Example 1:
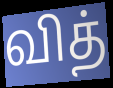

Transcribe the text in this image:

வித்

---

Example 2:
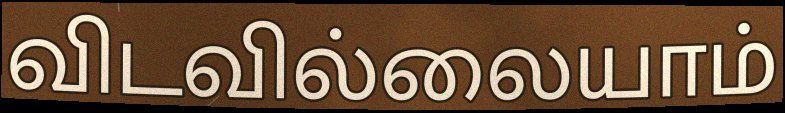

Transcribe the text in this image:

விடவில்லையாம்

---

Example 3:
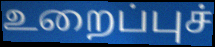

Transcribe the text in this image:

உறைப்புச்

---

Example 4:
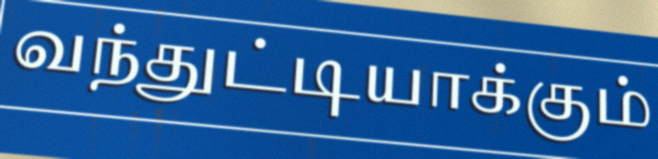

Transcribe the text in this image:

வந்துட்டியாக்கும்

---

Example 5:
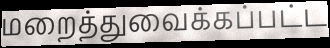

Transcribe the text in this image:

மறைத்துவைக்கப்பட்ட